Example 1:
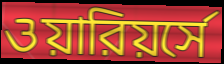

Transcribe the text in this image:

ওয়ারিয়র্সে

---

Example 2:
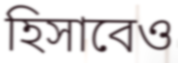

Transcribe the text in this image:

হিসাবেও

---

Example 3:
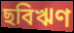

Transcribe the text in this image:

ছবিঋণ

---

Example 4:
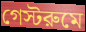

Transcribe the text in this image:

গেস্টরুমে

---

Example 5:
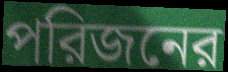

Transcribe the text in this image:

পরিজনের